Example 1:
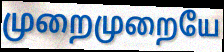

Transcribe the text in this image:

முறைமுறையே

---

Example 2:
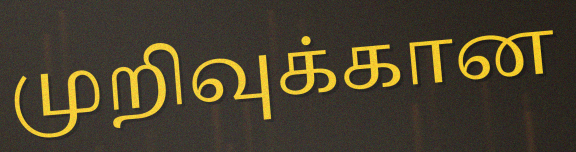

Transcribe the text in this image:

முறிவுக்கான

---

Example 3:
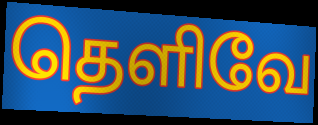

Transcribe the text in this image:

தெளிவே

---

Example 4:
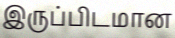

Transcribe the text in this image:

இருப்பிடமான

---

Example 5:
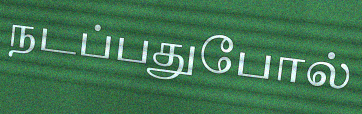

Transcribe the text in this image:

நடப்பதுபோல்